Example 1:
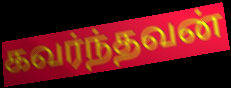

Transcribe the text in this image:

கவர்ந்தவன்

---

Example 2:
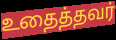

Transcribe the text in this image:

உதைத்தவர்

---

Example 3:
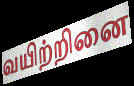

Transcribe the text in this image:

வயிற்றினை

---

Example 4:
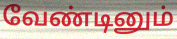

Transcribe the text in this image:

வேண்டினும்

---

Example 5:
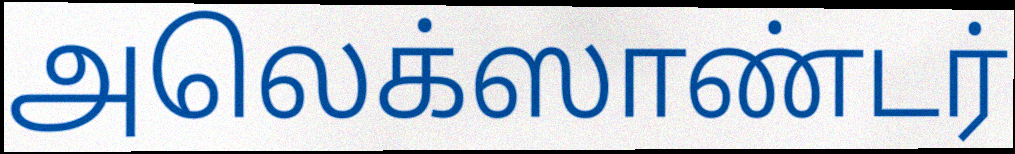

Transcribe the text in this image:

அலெக்ஸாண்டர்